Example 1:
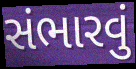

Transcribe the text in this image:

સંભારવું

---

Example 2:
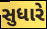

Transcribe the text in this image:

સુધારે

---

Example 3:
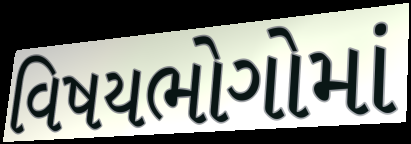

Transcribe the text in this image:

વિષયભોગોમાં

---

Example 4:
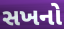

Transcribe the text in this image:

સખનો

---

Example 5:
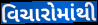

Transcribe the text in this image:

વિચારોમાંથી